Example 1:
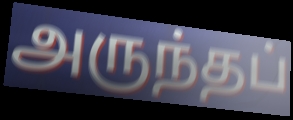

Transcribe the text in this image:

அருந்தப்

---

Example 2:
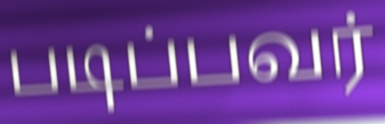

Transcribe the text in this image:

படிப்பவர்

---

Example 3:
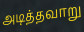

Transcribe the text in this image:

அடித்தவாறு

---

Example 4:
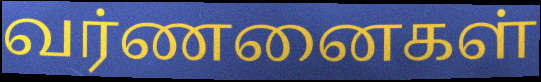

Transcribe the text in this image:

வர்ணனைகள்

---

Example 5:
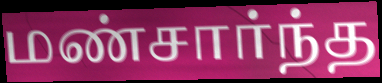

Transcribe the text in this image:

மண்சார்ந்த